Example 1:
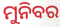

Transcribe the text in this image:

ମୁନିବର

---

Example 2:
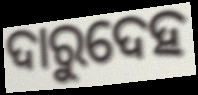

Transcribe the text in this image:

ଦାରୁଦେହ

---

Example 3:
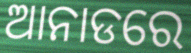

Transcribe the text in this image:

ଆନାଡରେ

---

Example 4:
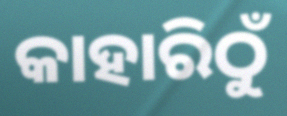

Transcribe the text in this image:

କାହାରିଠୁଁ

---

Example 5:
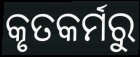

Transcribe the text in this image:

କୃତକର୍ମରୁ